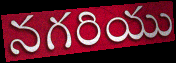
నగరియు